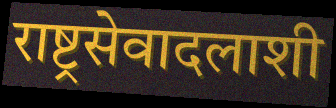
राष्ट्रसेवादलाशी